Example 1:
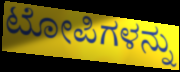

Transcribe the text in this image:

ಟೋಪಿಗಳನ್ನು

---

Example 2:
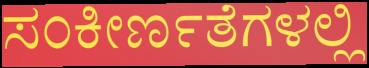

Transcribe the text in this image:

ಸಂಕೀರ್ಣತೆಗಳಲ್ಲಿ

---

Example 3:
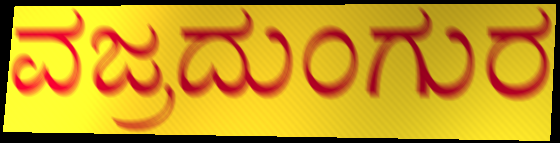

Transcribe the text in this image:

ವಜ್ರದುಂಗುರ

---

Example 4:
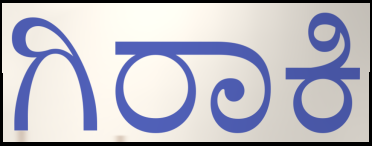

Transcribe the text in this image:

ಗಿರಾಕಿ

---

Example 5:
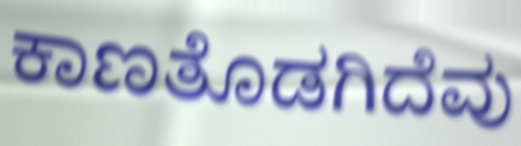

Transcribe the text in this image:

ಕಾಣತೊಡಗಿದೆವು